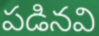
పడినవి